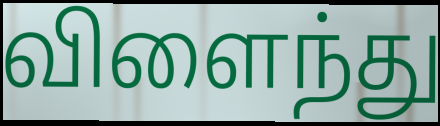
விளைந்து